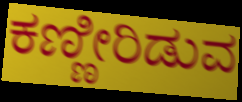
ಕಣ್ಣೀರಿಡುವ